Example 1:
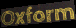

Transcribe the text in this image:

Oxform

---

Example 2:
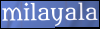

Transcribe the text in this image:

milayala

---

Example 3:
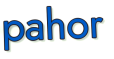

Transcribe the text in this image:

pahor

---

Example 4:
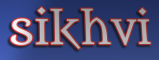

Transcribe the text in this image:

sikhvi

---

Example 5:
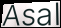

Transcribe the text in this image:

Asal